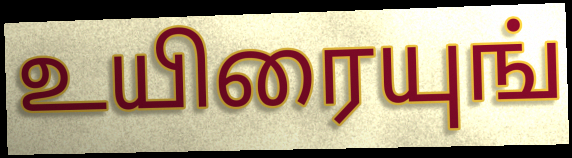
உயிரையுங்